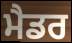
ਮੈਡਰ